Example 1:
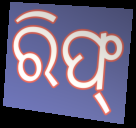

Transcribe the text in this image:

ରିଫ୍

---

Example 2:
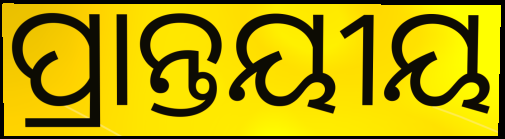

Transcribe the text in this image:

ପ୍ରାନ୍ତୟୀୟ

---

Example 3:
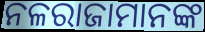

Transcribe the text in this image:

ନଳରାଜାମାନଙ୍କ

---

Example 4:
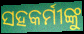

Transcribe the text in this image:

ସହକର୍ମୀଙ୍କୁ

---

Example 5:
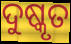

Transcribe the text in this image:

ଦୁଷ୍କୃତ